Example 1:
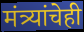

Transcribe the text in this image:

मंत्र्यांचेही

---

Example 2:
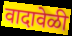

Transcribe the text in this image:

वादावेळी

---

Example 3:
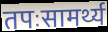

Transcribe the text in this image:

तपःसामर्थ्य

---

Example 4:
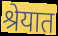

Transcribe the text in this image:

श्रेयात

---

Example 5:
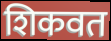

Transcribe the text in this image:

शिकवत